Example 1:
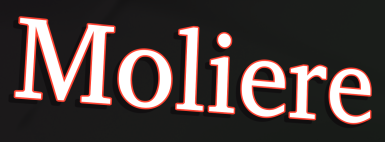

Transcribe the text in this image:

Moliere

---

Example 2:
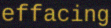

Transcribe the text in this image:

effacing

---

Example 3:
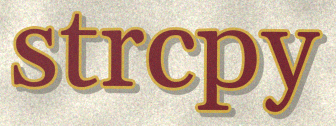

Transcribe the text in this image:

strcpy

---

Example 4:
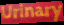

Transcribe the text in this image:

Urinary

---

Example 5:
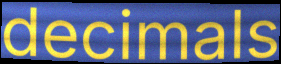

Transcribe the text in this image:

decimals